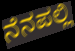
ನೆನಪಲ್ಲಿ